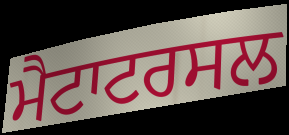
ਮੈਟਾਟਰਸਲ